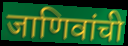
जाणिवांची